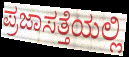
ಪ್ರಜಾಸತ್ತೆಯಲ್ಲಿ